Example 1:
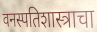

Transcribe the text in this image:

वनस्पतिशास्त्राचा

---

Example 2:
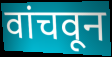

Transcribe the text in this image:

वांचवून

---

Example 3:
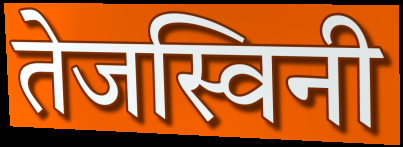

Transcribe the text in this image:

तेजस्विनी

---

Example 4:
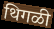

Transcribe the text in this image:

थिगळी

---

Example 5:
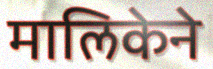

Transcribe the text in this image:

मालिकेने